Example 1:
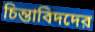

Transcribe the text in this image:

চিন্তাবিদদের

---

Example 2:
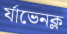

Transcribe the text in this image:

র্যাভেনক্ল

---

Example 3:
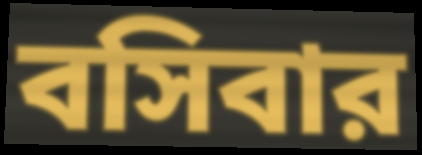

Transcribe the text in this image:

বসিবার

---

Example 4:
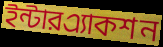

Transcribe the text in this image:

ইন্টারএ্যাকশন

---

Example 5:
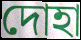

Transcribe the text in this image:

দোহা